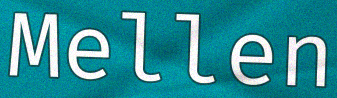
Mellen